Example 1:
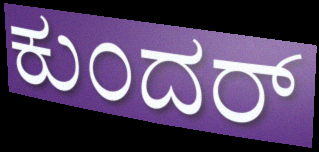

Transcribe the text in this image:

ಕುಂದರ್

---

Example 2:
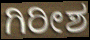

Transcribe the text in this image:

ಗಿರೀಶ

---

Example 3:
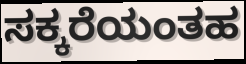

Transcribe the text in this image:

ಸಕ್ಕರೆಯಂತಹ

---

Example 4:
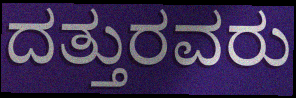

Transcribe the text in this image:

ದತ್ತುರವರು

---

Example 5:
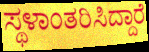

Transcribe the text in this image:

ಸ್ಥಳಾಂತರಿಸಿದ್ದಾರೆ